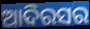
ଆଦିରସର